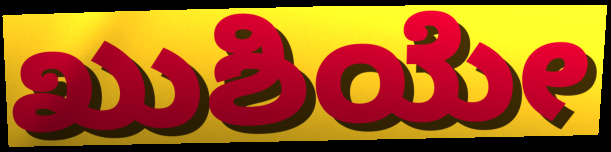
ಖುಶಿಯೇ